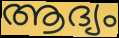
ആദ്യം